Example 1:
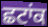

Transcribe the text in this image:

ਛਟਾਂਕ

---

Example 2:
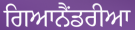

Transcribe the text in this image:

ਗਿਆਨੈਂਡਰੀਆ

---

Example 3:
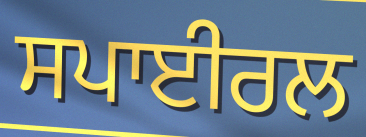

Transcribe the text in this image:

ਸਪਾਈਰਲ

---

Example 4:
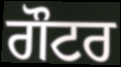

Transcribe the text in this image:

ਗੌਟਰ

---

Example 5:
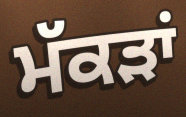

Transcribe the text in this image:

ਮੱਕੜਾਂ